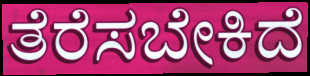
ತೆರೆಸಬೇಕಿದೆ